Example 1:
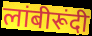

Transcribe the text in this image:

लांबीरूंदी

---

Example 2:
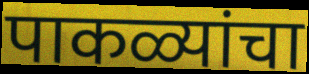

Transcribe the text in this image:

पाकळ्यांचा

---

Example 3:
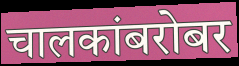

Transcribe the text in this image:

चालकांबरोबर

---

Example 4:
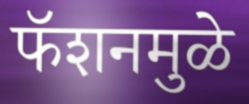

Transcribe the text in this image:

फॅशनमुळे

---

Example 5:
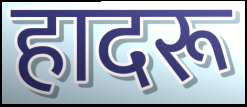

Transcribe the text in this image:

हादरू